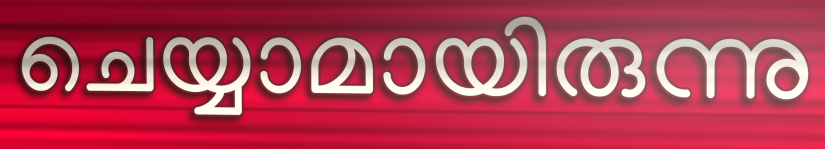
ചെയ്യാമായിരുന്നു